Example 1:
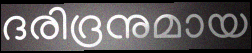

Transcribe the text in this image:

ദരിദ്രനുമായ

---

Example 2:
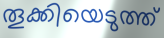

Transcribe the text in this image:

തൂക്കിയെടുത്ത്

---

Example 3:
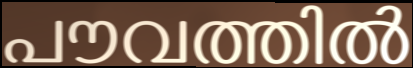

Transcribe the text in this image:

പൗവത്തിൽ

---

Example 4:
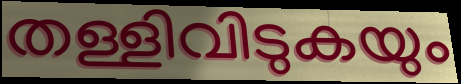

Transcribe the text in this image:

തള്ളിവിടുകയും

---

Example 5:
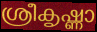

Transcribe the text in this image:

ശ്രീകൃഷ്ണാ